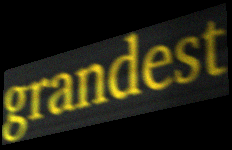
grandest